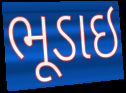
ભૂડાઇ